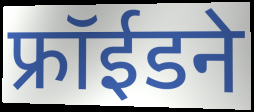
फ्रॉईडने